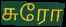
சுரோ